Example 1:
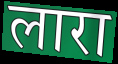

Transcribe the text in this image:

लारा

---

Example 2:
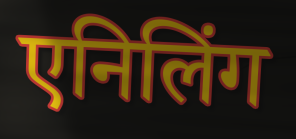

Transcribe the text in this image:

एनिलिंग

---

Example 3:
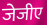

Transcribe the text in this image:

जेजीए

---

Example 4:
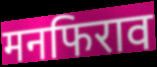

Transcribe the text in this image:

मनफिराव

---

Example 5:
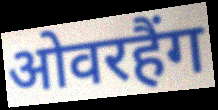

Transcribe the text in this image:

ओवरहैंग